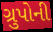
ગ્રુપોની